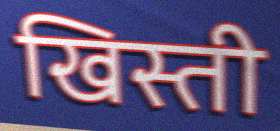
खिस्ती